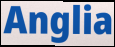
Anglia